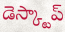
డెస్క్టాప్